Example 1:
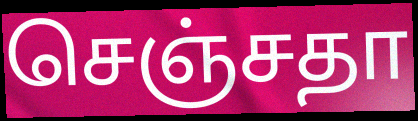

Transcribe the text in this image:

செஞ்சதா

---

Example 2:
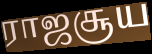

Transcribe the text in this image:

ராஜசூய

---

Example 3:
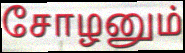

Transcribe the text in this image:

சோழனும்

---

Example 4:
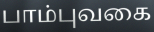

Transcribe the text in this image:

பாம்புவகை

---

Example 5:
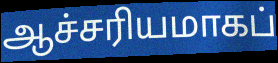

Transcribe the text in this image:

ஆச்சரியமாகப்